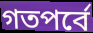
গতপর্বে